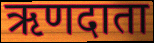
ऋणदाता